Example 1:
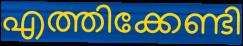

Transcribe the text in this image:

എത്തിക്കേണ്ടി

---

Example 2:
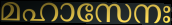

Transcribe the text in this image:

മഹാസേനഃ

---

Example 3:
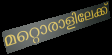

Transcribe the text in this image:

മറ്റൊരാളിലേക്ക്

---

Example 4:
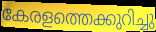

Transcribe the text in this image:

കേരളത്തെക്കുറിച്ചു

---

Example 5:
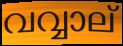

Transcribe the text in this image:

വവ്വാല്